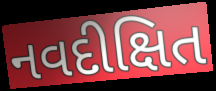
નવદીક્ષિત